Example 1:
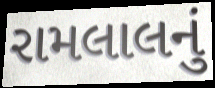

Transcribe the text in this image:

રામલાલનું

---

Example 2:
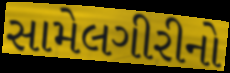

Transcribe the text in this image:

સામેલગીરીનો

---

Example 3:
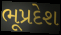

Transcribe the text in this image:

ભૂપ્રદેશ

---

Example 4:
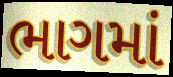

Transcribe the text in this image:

ભાગમાં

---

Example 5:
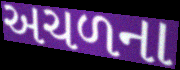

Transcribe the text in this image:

અચળના